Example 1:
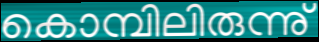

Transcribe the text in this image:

കൊമ്പിലിരുന്നു്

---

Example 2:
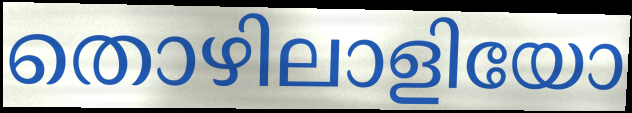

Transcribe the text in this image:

തൊഴിലാളിയോ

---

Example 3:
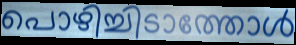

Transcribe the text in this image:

പൊഴിച്ചിടാത്തോൾ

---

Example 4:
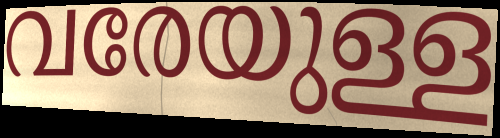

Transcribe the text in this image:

വരേയുള്ള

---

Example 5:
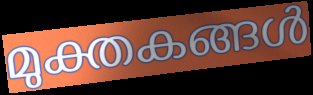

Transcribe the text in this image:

മുക്തകങ്ങൾ